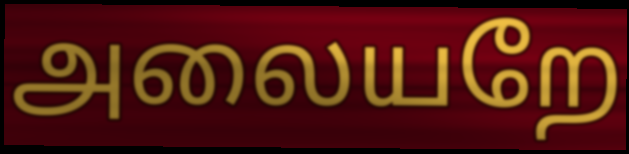
அலையறே